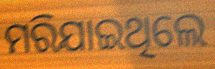
ମରିଯାଇଥିଲେ